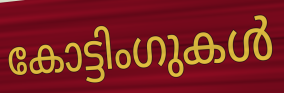
കോട്ടിംഗുകൾ